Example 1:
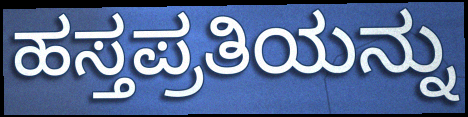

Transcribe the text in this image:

ಹಸ್ತಪ್ರತಿಯನ್ನು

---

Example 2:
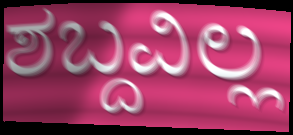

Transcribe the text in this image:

ಶಬ್ದವಿಲ್ಲ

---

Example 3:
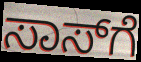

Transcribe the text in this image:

ಸಾಸ್‌ಗೆ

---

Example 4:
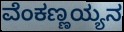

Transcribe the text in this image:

ವೆಂಕಣ್ಣಯ್ಯನ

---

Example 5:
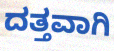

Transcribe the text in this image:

ದತ್ತವಾಗಿ